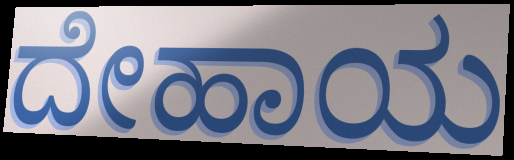
ದೇಹಾಯ